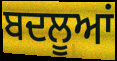
ਬਦਲੂਆਂ